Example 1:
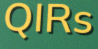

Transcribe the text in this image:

QIRs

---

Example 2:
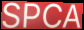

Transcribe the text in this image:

SPCA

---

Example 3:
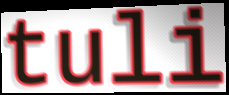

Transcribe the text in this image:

tuli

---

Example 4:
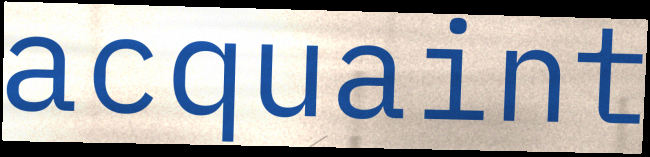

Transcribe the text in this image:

acquaint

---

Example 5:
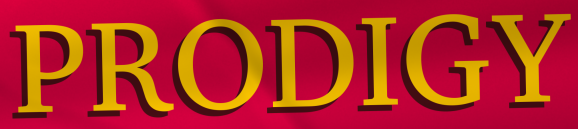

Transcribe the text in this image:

PRODIGY